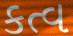
કત્વ